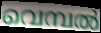
വെമ്പൽ